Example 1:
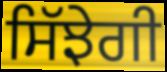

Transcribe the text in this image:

ਸਿੱਝੇਗੀ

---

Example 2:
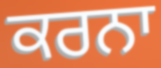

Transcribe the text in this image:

ਕਰਨਾ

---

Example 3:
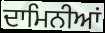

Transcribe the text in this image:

ਦਾਮਿਨੀਆਂ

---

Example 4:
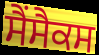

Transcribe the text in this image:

ਸੈਂਸੈਕਸ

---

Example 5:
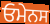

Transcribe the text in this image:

ਓਮੇਨਸ